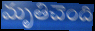
మృతిచెంది